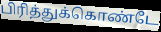
பிரித்துக்கொண்டே